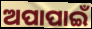
ଅପାପାଇଁ